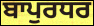
ਬਾਪੁਰਧਰ